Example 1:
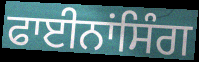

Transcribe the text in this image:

ਫਾਈਨਾਂਸਿੰਗ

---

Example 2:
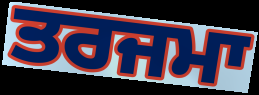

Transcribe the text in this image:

ਤਰਜਮਾ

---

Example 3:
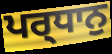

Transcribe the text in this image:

ਪਰ੍ਧਾਨੁ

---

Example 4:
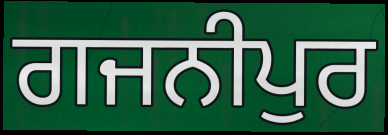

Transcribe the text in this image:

ਗਜਨੀਪੁਰ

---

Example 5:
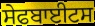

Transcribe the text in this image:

ਸੇਫਬਾਈਟਸ